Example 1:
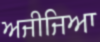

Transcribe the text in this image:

ਅਜੀਜਿਆ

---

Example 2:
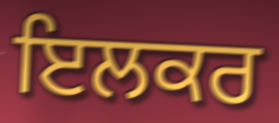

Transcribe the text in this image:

ਇਲਕਰ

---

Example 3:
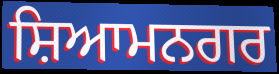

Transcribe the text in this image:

ਸ਼ਿਆਮਨਗਰ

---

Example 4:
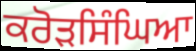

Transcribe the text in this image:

ਕਰੋੜਸਿੰਘਿਆ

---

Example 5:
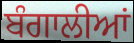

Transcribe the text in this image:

ਬੰਗਾਲੀਆਂ